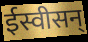
ईस्वीसन्